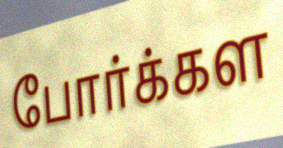
போர்க்கள